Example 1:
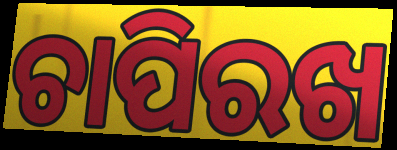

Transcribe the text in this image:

ଚାପିରଖ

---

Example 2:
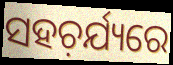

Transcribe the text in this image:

ସହଚ଼ର୍ଯ୍ୟରେ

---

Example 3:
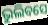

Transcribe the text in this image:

ଭୁଲିବସେ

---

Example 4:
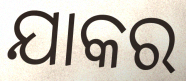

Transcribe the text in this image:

ଯାକର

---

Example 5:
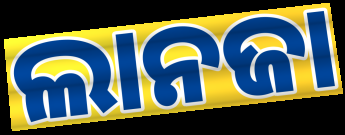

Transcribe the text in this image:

ଲାନଜା